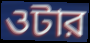
ওটার